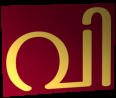
വി